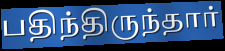
பதிந்திருந்தார்